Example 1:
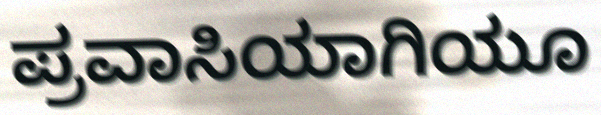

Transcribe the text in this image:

ಪ್ರವಾಸಿಯಾಗಿಯೂ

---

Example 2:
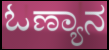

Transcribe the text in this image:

ಓಣ್ಯಾನ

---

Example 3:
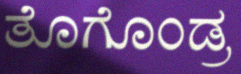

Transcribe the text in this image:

ತೊಗೊಂಡ್ರ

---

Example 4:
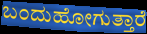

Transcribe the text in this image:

ಬಂದುಹೋಗುತ್ತಾರೆ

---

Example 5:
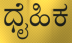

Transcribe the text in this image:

ಧೈಹಿಕ